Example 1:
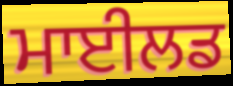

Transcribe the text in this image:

ਮਾਈਲਡ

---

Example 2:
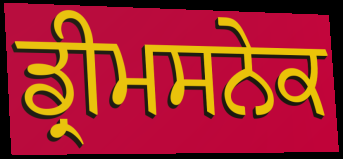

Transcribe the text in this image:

ਡ੍ਰੀਮਸਨੇਕ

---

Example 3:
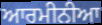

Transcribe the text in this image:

ਆਰਮੀਨੀਆ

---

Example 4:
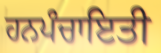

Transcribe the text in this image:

ਹਨਪੰਚਾਇਤੀ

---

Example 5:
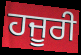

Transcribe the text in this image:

ਹਜੂਰੀ